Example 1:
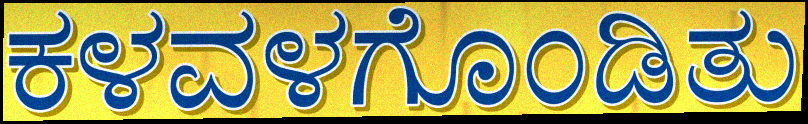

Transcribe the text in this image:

ಕಳವಳಗೊಂಡಿತು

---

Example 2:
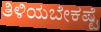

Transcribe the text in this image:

ತಿಳಿಯಬೇಕಷ್ಟೆ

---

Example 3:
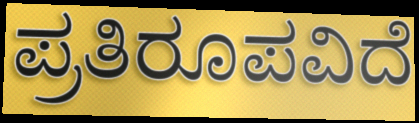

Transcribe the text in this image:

ಪ್ರತಿರೂಪವಿದೆ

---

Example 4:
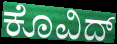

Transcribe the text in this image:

ಕೊವಿದ್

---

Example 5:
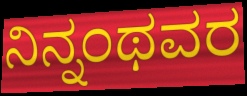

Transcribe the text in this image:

ನಿನ್ನಂಥವರ